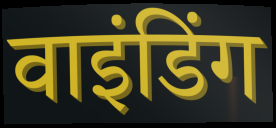
वाइंडिंग